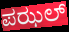
ಪಝಲ್